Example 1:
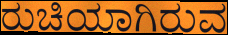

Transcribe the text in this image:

ರುಚಿಯಾಗಿರುವ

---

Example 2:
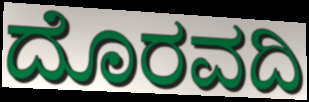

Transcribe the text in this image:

ದೊರವದಿ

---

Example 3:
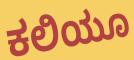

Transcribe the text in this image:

ಕಲಿಯೂ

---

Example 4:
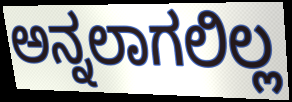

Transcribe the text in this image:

ಅನ್ನಲಾಗಲಿಲ್ಲ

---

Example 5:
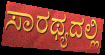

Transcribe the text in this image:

ಸಾರಥ್ಯದಲ್ಲಿ